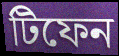
টিফেন